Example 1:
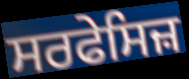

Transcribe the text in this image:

ਸਰਫੇਸਿਜ਼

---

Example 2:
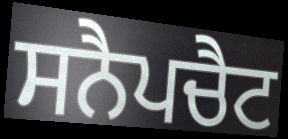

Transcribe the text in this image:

ਸਨੈਪਚੈਟ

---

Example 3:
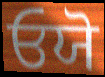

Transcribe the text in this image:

ਓਯੋ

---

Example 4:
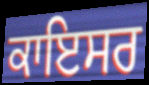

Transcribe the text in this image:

ਕਾਇਸਰ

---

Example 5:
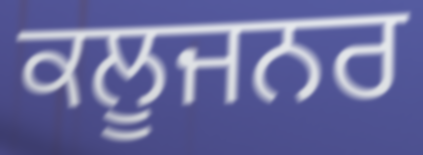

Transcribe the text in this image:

ਕਲੂਜਨਰ